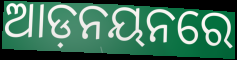
ଆଡ଼ନୟନରେ